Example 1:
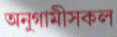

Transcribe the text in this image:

অনুগামীসকল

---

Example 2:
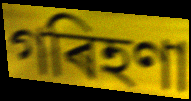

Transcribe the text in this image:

গৰিহণা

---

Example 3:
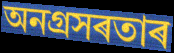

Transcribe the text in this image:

অনগ্ৰসৰতাৰ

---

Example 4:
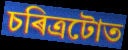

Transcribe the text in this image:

চৰিত্ৰটোত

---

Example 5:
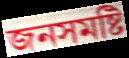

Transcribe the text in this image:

জনসমষ্টি